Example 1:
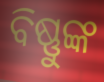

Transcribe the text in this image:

ବିଷ୍ଣୁଙ୍କ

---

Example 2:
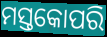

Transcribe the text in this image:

ମସ୍ତକୋପରି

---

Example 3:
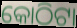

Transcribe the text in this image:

କୋଠିଟା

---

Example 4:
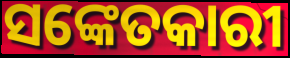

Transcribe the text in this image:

ସଙ୍କେତକାରୀ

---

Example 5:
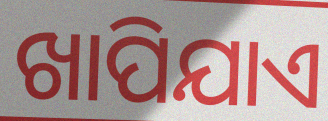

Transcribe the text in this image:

ଖାପିଯାଏ